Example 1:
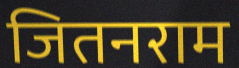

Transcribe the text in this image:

जितनराम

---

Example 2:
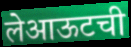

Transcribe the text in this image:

लेआऊटची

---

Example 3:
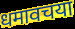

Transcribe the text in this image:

धमावचया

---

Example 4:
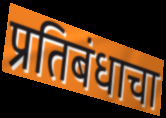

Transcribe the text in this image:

प्रतिबंधाचा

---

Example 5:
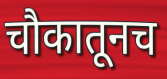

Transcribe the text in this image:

चौकातूनच